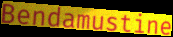
Bendamustine